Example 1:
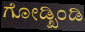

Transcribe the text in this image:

ಗೋಡ್ಖಿಂಡಿ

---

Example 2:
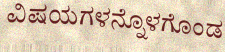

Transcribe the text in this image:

ವಿಷಯಗಳನ್ನೊಳಗೊಂಡ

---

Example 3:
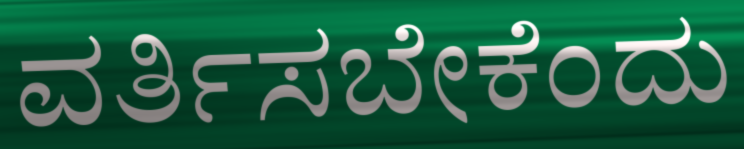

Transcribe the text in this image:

ವರ್ತಿಸಬೇಕೆಂದು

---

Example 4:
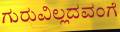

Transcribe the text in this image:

ಗುರುವಿಲ್ಲದವಂಗೆ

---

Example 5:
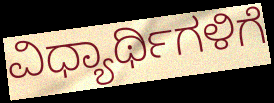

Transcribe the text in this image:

ವಿಧ್ಯಾರ್ಥಿಗಳಿಗೆ